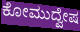
ಕೋಮುದ್ವೇಷ